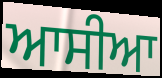
ਆਸੀਆ